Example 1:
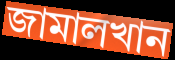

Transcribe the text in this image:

জামালখান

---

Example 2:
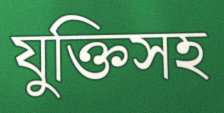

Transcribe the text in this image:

যুক্তিসহ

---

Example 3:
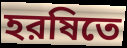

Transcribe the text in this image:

হরষিতে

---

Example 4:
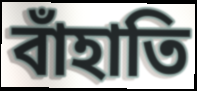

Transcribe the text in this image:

বাঁহাতি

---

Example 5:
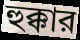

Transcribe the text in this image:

হুক্কার